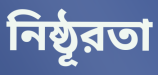
নিষ্ঠূরতা